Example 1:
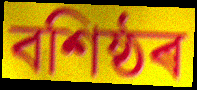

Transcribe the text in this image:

বশিষ্ঠৰ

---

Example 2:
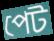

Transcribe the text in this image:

পেট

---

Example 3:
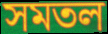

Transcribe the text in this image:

সমতল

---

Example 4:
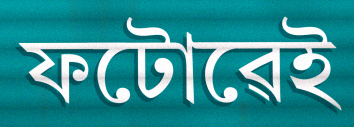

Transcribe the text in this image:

ফটোৱেই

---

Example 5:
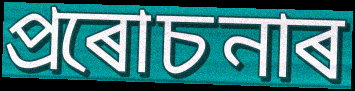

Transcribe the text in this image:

প্ৰৰোচনাৰ